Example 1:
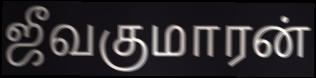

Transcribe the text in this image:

ஜீவகுமாரன்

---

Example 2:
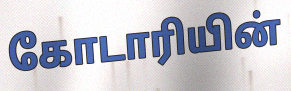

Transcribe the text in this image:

கோடாரியின்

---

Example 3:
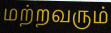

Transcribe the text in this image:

மற்றவரும்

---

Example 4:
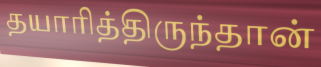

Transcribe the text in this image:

தயாரித்திருந்தான்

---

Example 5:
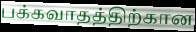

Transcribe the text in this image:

பக்கவாதத்திற்கான